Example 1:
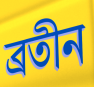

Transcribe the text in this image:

ব্রতীন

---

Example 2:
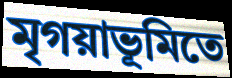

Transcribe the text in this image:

মৃগয়াভূমিতে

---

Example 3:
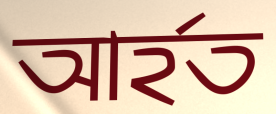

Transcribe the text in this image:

আর্হত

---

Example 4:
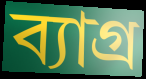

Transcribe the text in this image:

ব্যাগ্র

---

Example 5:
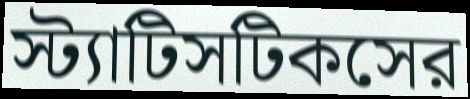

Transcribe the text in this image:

স্ট্যাটিসটিকসের